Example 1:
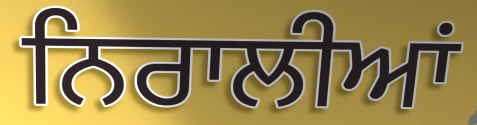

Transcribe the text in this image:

ਨਿਰਾਲੀਆਂ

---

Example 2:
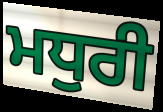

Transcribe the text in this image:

ਮਧੁਰੀ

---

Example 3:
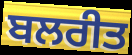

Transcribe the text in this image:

ਬਲਰੀਤ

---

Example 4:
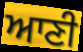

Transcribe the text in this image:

ਆਣੀ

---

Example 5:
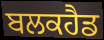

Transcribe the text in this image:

ਬਲਕਹੈਡ